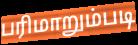
பரிமாறும்படி